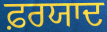
ਫ਼ਰਯਾਦ